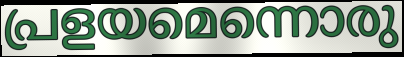
പ്രളയമെന്നൊരു